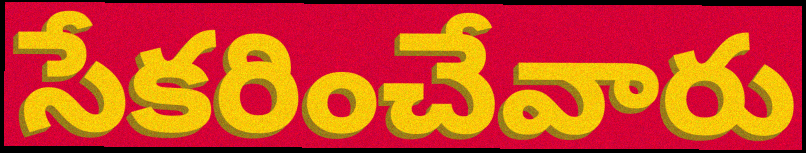
సేకరించేవారు